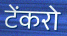
टेंकरो